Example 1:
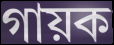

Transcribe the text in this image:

গায়ক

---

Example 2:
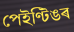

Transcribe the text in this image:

পেইণ্টিঙৰ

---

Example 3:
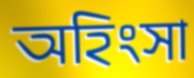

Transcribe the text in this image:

অহিংসা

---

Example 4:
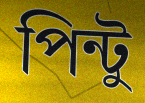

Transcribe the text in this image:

পিন্টু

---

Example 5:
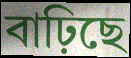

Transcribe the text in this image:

বাঢ়িছে